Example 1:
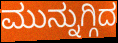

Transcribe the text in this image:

ಮುನ್ನುಗ್ಗಿದ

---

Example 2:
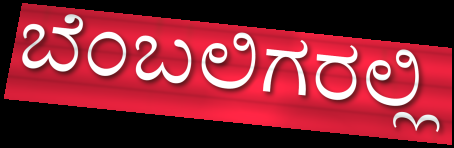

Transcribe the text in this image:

ಬೆಂಬಲಿಗರಲ್ಲಿ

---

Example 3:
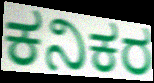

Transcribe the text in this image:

ಕನಿಕರ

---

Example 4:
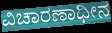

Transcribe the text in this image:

ವಿಚಾರಣಾಧೀನ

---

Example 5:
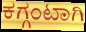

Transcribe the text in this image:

ಕಗ್ಗಂಟಾಗಿ